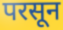
परसून